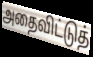
அதைவிட்டுத்